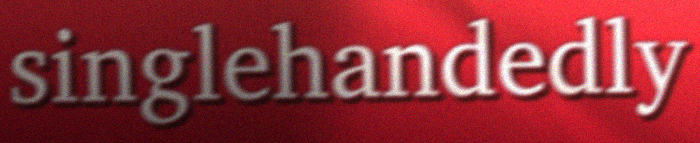
singlehandedly